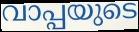
വാപ്പയുടെ